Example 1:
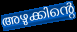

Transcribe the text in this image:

അഴുക്കിന്റെ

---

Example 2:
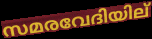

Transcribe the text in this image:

സമരവേദിയില്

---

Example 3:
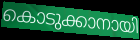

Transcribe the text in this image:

കൊടുക്കാനായി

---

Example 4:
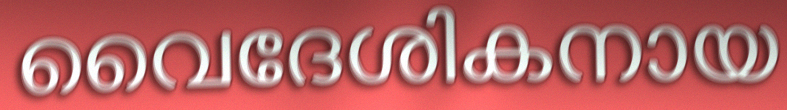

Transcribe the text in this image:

വൈദേശികനായ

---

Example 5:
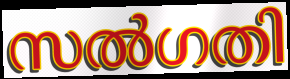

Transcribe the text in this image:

സൽഗതി